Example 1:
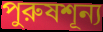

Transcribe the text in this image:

পুরুষশূন্য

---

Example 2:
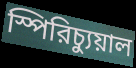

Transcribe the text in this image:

স্পিরিচ্যুয়াল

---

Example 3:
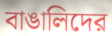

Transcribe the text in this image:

বাঙালিদের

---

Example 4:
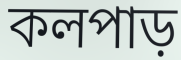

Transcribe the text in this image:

কলপাড়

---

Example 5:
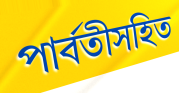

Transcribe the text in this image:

পার্বতীসহিত